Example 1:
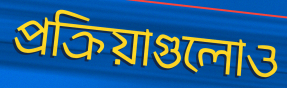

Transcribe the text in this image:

প্রক্রিয়াগুলোও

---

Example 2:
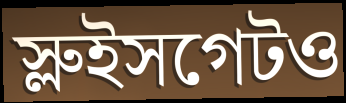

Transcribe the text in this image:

স্লুইসগেটও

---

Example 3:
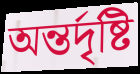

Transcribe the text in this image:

অন্তর্দৃষ্টি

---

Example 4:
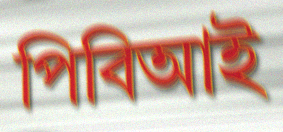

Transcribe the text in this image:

পিবিআই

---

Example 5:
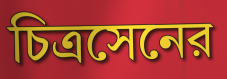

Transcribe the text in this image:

চিত্রসেনের